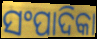
ସଂପାଦିକା